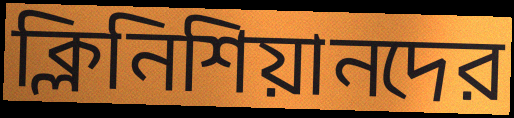
ক্লিনিশিয়ানদের